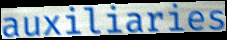
auxiliaries